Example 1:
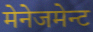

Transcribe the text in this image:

मेनेजमेन्ट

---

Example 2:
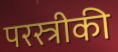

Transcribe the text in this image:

परस्त्रीकी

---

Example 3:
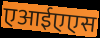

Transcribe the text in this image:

एआईएएस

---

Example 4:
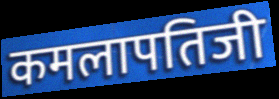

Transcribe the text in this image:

कमलापतिजी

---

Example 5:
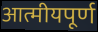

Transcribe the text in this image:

आत्मीयपूर्ण